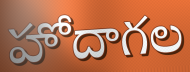
హోదాగల